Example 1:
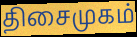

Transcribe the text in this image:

திசைமுகம்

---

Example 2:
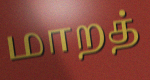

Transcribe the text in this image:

மாறத்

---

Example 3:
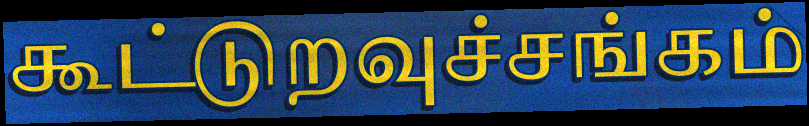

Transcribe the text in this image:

கூட்டுறவுச்சங்கம்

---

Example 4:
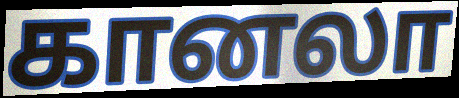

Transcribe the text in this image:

கானலா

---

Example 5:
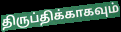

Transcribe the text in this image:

திருப்திக்காகவும்